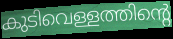
കുടിവെള്ളത്തിന്റെ